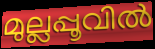
മുല്ലപ്പൂവിൽ